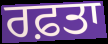
ਰਫ਼ਤਾ